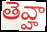
తెవ్హా